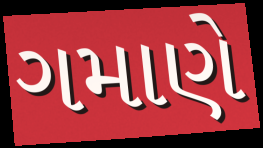
ગમાણે